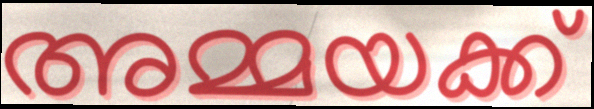
അമ്മയക്ക്